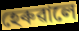
হেৰুৱালে